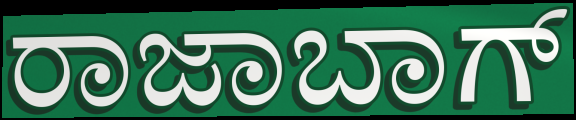
ರಾಜಾಬಾಗ್